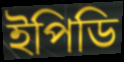
ইপিডি